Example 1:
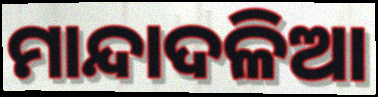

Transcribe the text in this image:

ମାନ୍ଦାଦଳିଆ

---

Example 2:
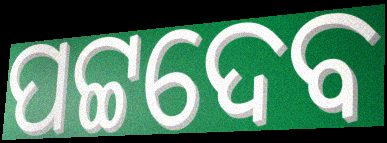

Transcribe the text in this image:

ପଟ୍ଟଦେବ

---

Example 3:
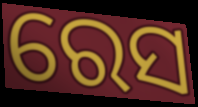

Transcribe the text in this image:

ରେସ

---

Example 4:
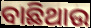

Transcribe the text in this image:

ବାଛିଥାଉ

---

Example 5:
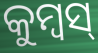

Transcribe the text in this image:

କୁମ୍ବସ୍